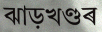
ঝাড়খণ্ডৰ